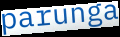
parunga